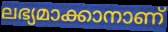
ലഭ്യമാക്കാനാണ്